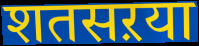
शतसऱया